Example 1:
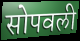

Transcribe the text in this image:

सोपवली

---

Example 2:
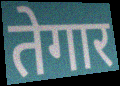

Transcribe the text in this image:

तेगार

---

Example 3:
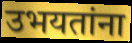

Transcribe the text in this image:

उभयतांना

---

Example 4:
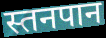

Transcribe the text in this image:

स्तनपान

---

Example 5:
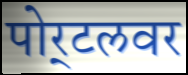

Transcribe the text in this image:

पोर्टलवर